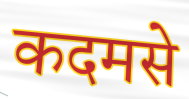
कदमसे